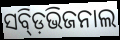
ସବ୍ଡ଼ିଭିଜନାଲ